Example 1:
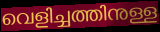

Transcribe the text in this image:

വെളിച്ചത്തിനുള്ള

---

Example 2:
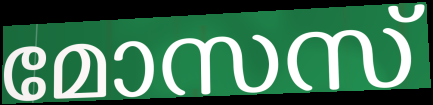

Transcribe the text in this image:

മോസസ്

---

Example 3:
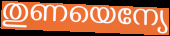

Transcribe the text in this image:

തുണയെന്യേ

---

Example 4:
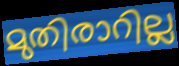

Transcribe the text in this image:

മുതിരാറില്ല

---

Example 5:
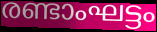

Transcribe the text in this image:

രണ്ടാംഘട്ടം